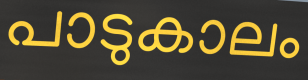
പാടുകാലം